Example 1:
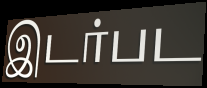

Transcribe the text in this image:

இடர்பட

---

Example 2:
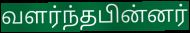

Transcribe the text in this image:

வளர்ந்தபின்னர்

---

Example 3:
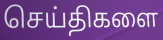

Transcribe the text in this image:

செய்திகளை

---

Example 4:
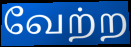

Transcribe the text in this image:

வேற்ற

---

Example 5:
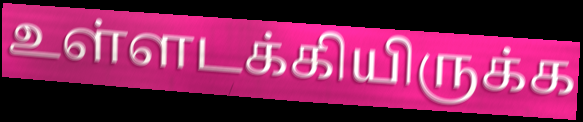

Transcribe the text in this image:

உள்ளடக்கியிருக்க